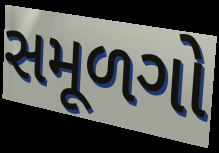
સમૂળગો